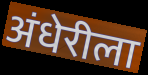
अंधेरीला